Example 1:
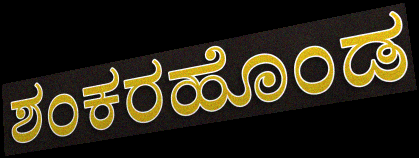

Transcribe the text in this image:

ಶಂಕರಹೊಂಡ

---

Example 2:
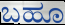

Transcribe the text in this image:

ಬಹೂ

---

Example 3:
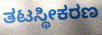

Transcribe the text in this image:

ತಟಸ್ಥೀಕರಣ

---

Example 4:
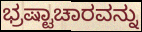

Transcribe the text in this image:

ಭ್ರಷ್ಟಾಚಾರವನ್ನು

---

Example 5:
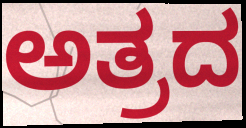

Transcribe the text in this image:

ಅತ್ರದ